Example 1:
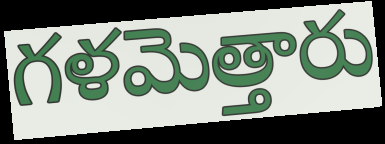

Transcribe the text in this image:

గళమెత్తారు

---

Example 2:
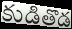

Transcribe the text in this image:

కుడితొడ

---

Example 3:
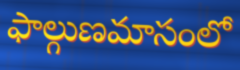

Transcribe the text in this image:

ఫాల్గుణమాసంలో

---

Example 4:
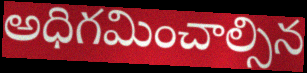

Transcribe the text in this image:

అధిగమించాల్సిన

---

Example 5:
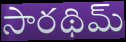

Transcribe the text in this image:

సారథిమ్